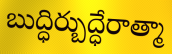
బుద్ధిర్బుద్ధేరాత్మా